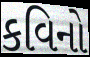
કવિનો